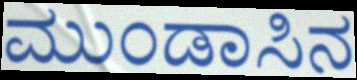
ಮುಂಡಾಸಿನ